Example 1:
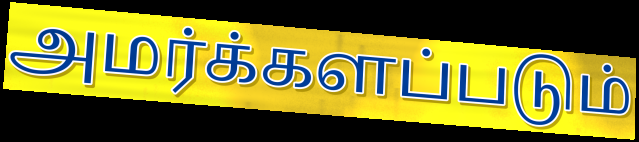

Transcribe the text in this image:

அமர்க்களப்படும்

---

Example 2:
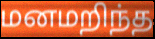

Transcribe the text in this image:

மனமறிந்த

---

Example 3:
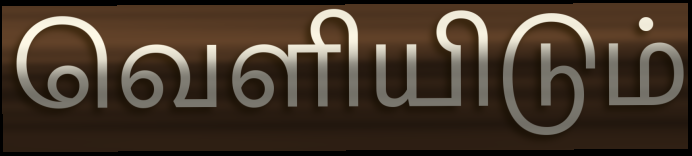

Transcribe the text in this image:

வெளியிடும்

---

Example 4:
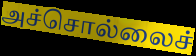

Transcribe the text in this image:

அச்சொல்லைச்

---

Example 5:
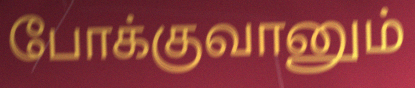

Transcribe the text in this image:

போக்குவானும்